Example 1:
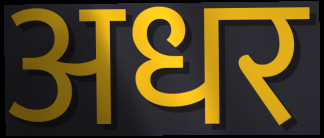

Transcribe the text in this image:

अधर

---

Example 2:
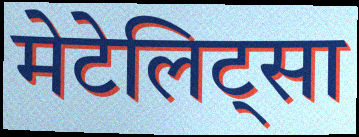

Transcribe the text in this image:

मेटेलिट्सा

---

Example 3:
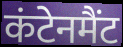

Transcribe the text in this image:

कंटेनमैंट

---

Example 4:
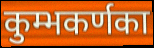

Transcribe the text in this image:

कुम्भकर्णका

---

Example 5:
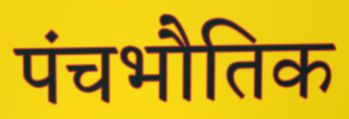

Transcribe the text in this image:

पंचभौतिक